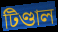
টিণ্ডাল